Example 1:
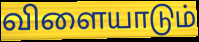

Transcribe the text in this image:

விளையாடும்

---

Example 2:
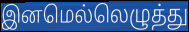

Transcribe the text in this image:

இனமெல்லெழுத்து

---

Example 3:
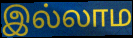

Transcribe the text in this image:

இல்லாம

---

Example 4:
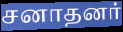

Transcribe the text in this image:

சனாதனர்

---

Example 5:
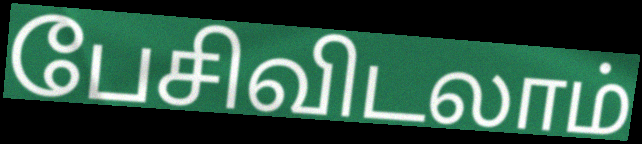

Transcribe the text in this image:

பேசிவிடலாம்